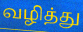
வழித்து